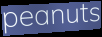
peanuts